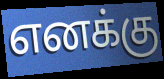
எனக்கு